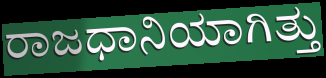
ರಾಜಧಾನಿಯಾಗಿತ್ತು